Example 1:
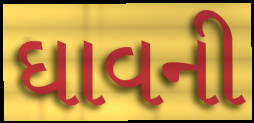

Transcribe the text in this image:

ઘાવની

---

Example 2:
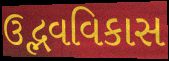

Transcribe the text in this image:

ઉદ્ભવવિકાસ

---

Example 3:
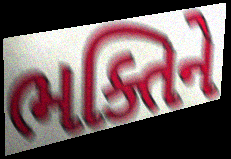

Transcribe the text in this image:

ભક્તિને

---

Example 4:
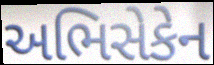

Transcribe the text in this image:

અભિસેકેન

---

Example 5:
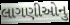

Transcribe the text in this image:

લાગણીઓનુ